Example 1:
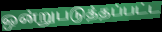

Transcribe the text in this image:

ஒன்றுபடுத்தப்பட்ட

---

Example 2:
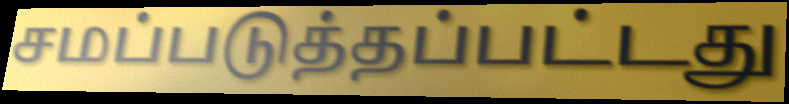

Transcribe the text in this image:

சமப்படுத்தப்பட்டது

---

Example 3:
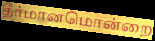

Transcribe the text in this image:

தீர்மானமொன்றை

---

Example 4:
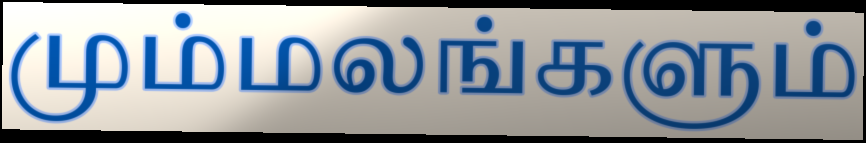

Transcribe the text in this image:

மும்மலங்களும்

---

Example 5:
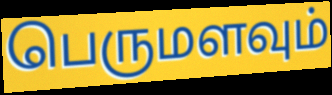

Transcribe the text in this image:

பெருமளவும்